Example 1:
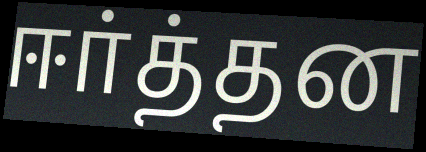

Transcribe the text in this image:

ஈர்த்தன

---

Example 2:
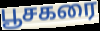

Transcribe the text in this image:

பூசகரை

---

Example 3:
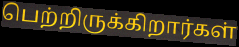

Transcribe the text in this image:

பெற்றிருக்கிறார்கள்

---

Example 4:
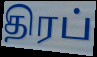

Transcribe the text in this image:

திரப்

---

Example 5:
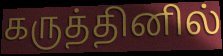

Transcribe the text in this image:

கருத்தினில்